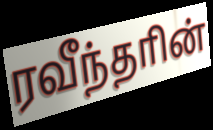
ரவீந்தரின்